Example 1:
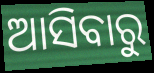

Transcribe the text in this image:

ଆସିବାରୁ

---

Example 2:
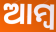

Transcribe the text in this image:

ଆମ୍ୱ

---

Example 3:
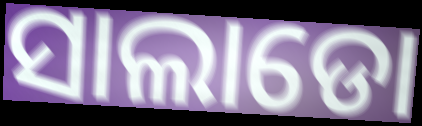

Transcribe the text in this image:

ସାଲାଡୋ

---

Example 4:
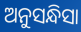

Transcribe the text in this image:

ଅନୁସନ୍ଧିସା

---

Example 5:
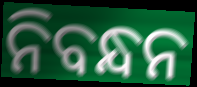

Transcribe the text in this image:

ନିବନ୍ଧନ